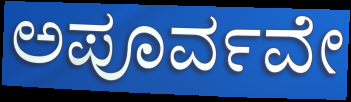
ಅಪೂರ್ವವೇ